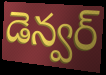
డెన్వర్